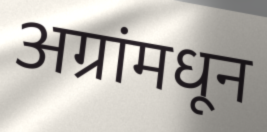
अग्रांमधून